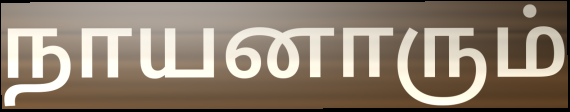
நாயனாரும்